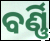
ବର୍ଣ୍ଣି